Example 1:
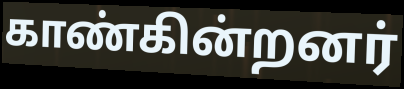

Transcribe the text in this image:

காண்கின்றனர்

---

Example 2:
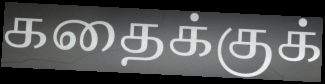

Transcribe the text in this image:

கதைக்குக்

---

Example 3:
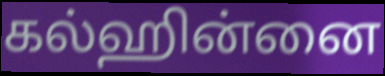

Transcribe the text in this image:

கல்ஹின்னை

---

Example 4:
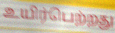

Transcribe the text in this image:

உயிர்பெற்றது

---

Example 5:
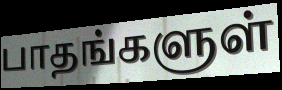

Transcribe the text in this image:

பாதங்களுள்